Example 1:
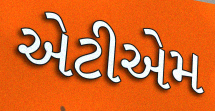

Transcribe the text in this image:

એટીએમ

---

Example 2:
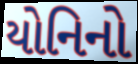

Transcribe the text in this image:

યોનિનો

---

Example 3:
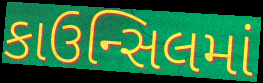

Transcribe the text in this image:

કાઉન્સિલમાં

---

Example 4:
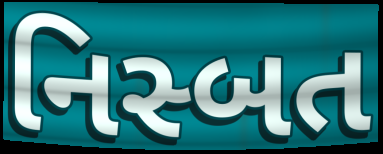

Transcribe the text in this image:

નિસ્બત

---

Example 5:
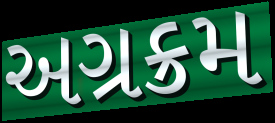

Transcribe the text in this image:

અગ્રક્રમ